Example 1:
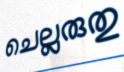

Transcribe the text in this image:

ചെല്ലരുതു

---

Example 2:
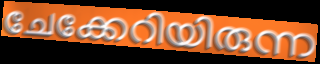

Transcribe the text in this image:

ചേക്കേറിയിരുന്ന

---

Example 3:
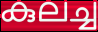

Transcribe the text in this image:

കുലച്ച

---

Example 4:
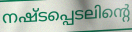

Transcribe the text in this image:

നഷ്ടപ്പെടലിന്റെ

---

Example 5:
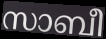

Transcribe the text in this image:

സാബീ